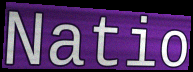
Natio